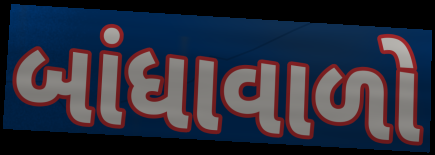
બાંધાવાળો